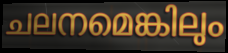
ചലനമെങ്കിലും